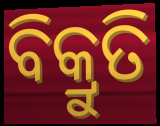
ବିକ୍ରୁତି